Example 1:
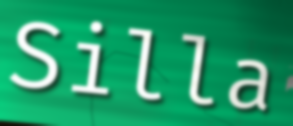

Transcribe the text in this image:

Silla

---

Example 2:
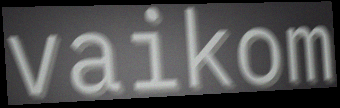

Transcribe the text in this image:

vaikom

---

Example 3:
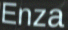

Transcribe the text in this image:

Enza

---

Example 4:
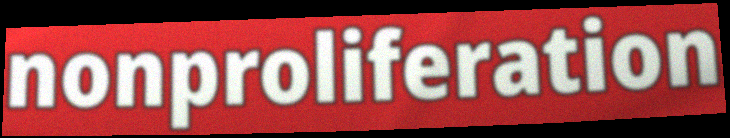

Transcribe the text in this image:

nonproliferation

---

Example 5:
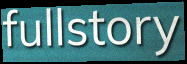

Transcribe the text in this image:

fullstory